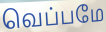
வெப்பமே